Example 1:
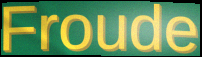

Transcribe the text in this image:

Froude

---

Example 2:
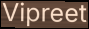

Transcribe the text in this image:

Vipreet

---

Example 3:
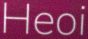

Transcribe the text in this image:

Heoi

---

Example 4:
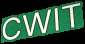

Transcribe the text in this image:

CWIT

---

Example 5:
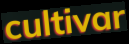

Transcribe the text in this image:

cultivar